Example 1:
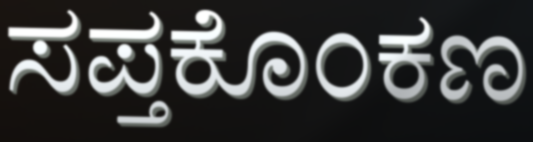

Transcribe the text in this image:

ಸಪ್ತಕೊಂಕಣ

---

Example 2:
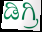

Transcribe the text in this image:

ಡಿಗ್ರಿ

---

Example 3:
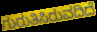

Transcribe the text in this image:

ಗುರುತಿಸಿರುವದಿದೆ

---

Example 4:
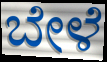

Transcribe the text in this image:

ಬೇಳೆ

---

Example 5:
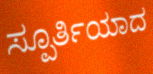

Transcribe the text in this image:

ಸ್ಪೂರ್ತಿಯಾದ